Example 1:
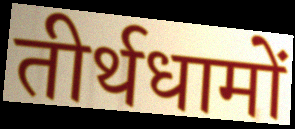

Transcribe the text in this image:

तीर्थधामों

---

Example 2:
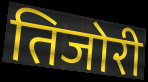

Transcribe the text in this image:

तिजोरी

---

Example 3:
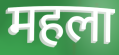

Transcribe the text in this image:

महला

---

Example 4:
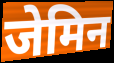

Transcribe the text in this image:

जेमिन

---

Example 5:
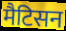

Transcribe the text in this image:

मैटिसन